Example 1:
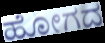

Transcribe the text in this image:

ಹೋಗದ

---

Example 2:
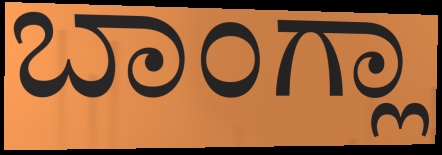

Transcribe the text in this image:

ಬಾಂಗ್ಲಾ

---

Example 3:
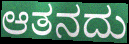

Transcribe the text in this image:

ಆತನದು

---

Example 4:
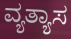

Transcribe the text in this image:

ವ್ಯತ್ಯಾಸ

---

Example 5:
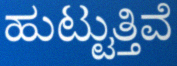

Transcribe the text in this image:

ಹುಟ್ಟುತ್ತಿವೆ